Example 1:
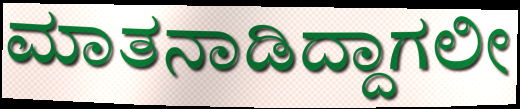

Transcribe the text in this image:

ಮಾತನಾಡಿದ್ದಾಗಲೀ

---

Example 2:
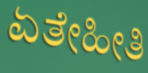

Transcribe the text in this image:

ಏತೇಹೀತಿ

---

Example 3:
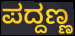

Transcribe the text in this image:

ಪದ್ದಣ್ಣ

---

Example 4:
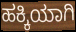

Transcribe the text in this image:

ಹಕ್ಕಿಯಾಗಿ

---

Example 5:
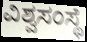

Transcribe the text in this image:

ವಿಶ್ವಸಂಸ್ಥೆ